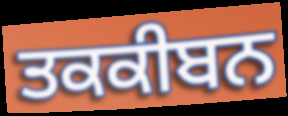
ਤਕਕੀਬਨ